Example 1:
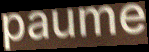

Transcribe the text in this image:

paume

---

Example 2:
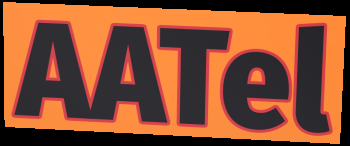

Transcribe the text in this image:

AATel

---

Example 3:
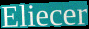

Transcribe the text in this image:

Eliecer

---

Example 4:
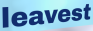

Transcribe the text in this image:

leavest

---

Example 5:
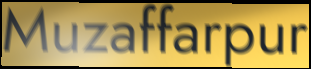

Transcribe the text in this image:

Muzaffarpur